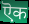
ऎक